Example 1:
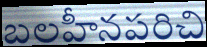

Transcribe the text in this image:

బలహీనపరిచి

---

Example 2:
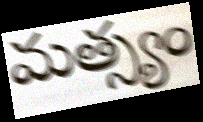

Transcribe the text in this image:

మత్స్యం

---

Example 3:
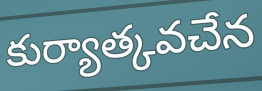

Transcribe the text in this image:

కుర్యాత్కవచేన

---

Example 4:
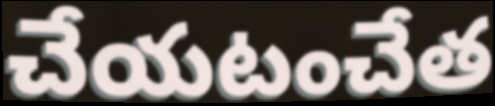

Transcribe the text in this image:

చేయటంచేత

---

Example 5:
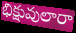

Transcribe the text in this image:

భిక్షువులారా